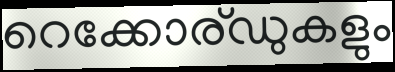
റെക്കോര്ഡുകളും